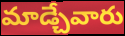
మాడ్చేవారు